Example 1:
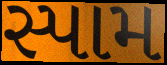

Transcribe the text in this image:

સ્પામ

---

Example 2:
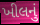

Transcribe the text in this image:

ખીલનું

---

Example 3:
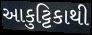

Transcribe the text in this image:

આકુટ્ટિકાથી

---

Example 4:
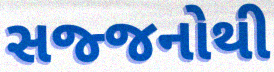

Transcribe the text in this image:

સજ્જનોથી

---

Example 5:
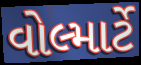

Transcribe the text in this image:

વોલ્માર્ટે